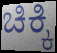
ಚಿಕ್ಕಿ